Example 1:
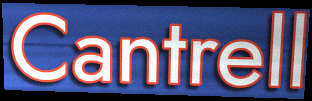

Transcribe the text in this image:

Cantrell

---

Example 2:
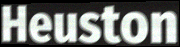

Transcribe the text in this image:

Heuston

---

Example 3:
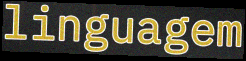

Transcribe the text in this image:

linguagem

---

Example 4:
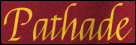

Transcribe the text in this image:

Pathade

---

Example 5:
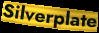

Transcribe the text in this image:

Silverplate